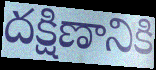
దక్షిణానికి